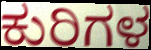
ಕುರಿಗಳ